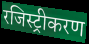
रजिस्ट्रीकरण